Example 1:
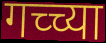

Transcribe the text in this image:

गच्च्या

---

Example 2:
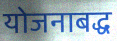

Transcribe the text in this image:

योजनाबद्ध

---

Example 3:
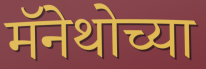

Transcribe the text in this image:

मॅनेथोच्या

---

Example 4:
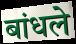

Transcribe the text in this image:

बांधले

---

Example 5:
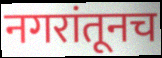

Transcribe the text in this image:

नगरांतूनच